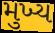
મુખ્ય